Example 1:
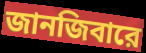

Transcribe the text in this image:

জানজিবারে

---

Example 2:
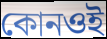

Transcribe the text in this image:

কোনওই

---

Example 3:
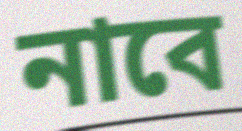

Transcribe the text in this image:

নাবে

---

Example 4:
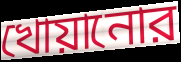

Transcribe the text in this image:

খোয়ানোর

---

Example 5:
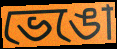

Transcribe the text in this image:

ভেঙো